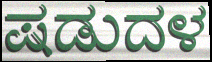
ಷಡುದಳ